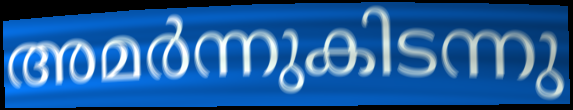
അമർന്നുകിടന്നു